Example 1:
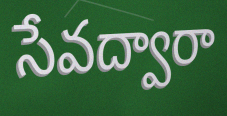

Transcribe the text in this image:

సేవద్వారా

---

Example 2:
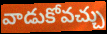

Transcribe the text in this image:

వాడుకోవచ్చు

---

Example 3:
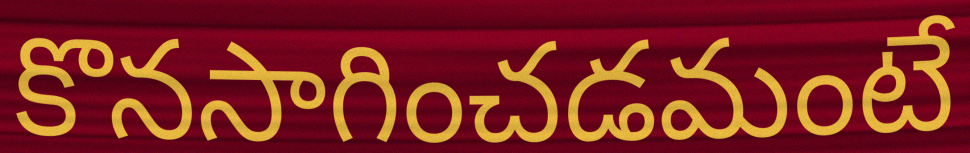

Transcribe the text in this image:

కొనసాగించడమంటే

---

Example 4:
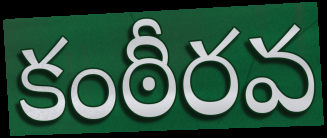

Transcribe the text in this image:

కంఠీరవ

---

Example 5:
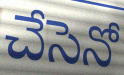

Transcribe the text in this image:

చేసెనో